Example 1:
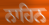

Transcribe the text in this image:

ਨਾਹਿਨ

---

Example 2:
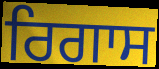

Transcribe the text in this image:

ਰਿਗਾਸ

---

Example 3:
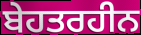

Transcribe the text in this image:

ਬੇਹਤਰਹੀਨ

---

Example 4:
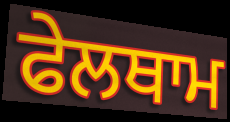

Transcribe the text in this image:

ਫੇਲਥਾਮ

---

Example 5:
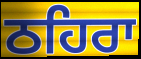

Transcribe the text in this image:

ਠਹਿਰਾ